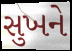
સુખને